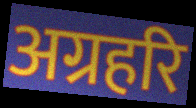
अग्रहरि